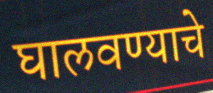
घालवण्याचे